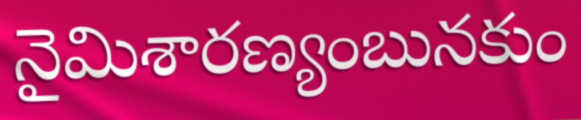
నైమిశారణ్యంబునకుం